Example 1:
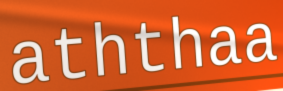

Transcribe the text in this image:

aththaa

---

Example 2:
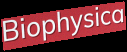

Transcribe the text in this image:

Biophysica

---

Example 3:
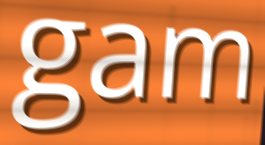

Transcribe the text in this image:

gam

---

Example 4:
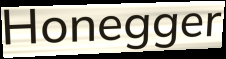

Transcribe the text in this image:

Honegger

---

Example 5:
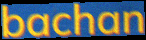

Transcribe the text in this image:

bachan